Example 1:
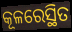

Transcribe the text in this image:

କୂଳରେସ୍ଥିତ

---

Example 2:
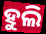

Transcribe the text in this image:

ହୁଲି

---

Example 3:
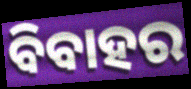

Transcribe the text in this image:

ବିବାହର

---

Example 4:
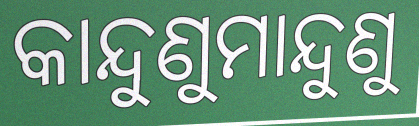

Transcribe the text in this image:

କାନ୍ଦୁଣୁମାନ୍ଦୁଣୁ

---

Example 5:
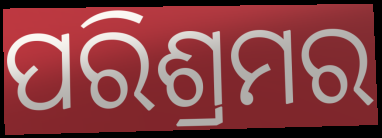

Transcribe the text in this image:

ପରିଶ୍ରମର